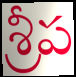
శ్రీప